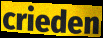
crieden